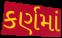
કર્ણમાં